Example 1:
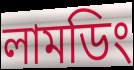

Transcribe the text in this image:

লামডিং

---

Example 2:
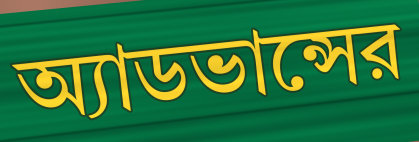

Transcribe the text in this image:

অ্যাডভান্সের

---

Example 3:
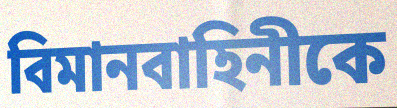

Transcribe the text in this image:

বিমানবাহিনীকে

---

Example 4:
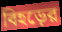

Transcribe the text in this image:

বিহড়ের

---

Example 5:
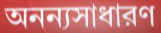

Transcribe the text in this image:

অনন্যসাধারণ